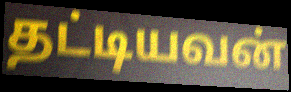
தட்டியவன்